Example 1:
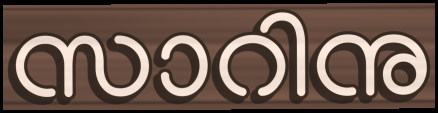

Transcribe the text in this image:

സാറിനു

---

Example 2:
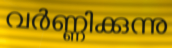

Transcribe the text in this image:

വർണ്ണിക്കുന്നു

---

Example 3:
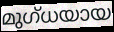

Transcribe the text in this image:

മുഗ്ധയായ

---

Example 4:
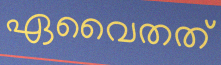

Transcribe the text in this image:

ഏവൈതത്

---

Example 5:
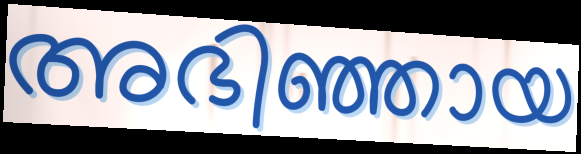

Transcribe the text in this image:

അഭിഞ്ഞായ